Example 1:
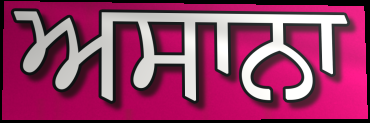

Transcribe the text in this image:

ਅਸਾਨਾ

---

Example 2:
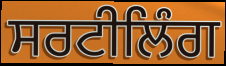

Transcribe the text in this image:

ਸਰਟੀਲਿੰਗ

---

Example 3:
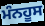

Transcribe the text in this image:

ਮੰਨਹੂਸ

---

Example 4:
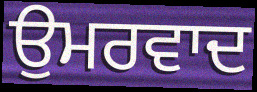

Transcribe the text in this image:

ਉਮਰਵਾਦ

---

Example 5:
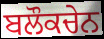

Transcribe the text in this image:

ਬਲੌਕਚੇਨ